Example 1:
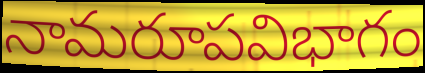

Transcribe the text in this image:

నామరూపవిభాగం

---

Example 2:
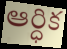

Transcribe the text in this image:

ఆర్ధిక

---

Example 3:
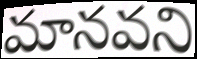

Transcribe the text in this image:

మానవని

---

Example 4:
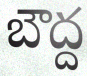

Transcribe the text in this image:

బౌద్ద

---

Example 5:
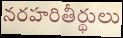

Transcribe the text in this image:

నరహరితీర్థులు